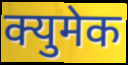
क्युमेक